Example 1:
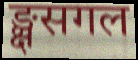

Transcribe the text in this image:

ङ्क्षसगल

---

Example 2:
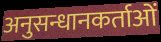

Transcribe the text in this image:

अनुसन्धानकर्ताओं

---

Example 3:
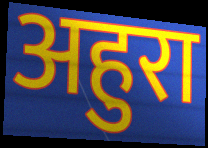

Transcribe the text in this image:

अहुरा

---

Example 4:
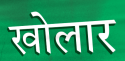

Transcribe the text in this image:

खोलार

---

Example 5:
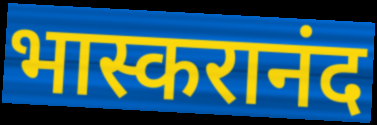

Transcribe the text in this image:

भास्करानंद